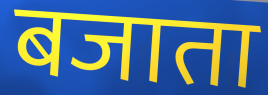
बजाता